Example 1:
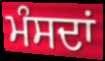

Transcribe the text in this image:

ਮੰਸਦਾਂ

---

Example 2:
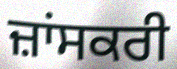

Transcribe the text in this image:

ਜ਼ਾਂਸਕਰੀ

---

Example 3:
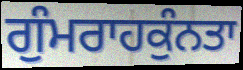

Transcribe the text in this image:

ਗੁੰਮਰਾਹਕੁੰਨਤਾ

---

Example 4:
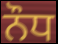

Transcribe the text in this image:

ਨੌਧ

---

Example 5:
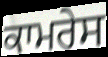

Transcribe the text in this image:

ਕਾਮਰੇਸ